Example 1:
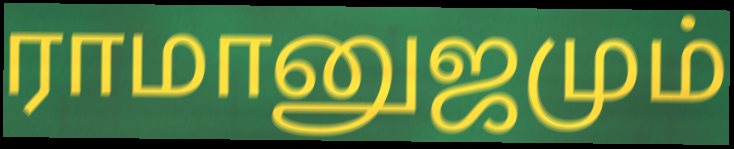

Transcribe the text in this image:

ராமானுஜமும்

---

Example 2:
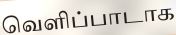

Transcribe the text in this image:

வெளிப்பாடாக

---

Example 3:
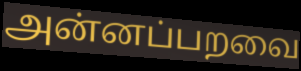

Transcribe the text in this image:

அன்னப்பறவை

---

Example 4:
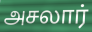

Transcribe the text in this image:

அசலார்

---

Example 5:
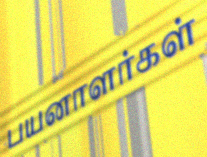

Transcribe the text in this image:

பயனாளர்கள்